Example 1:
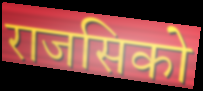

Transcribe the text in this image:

राजसिको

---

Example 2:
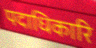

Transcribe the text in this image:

पदाधिकारि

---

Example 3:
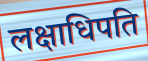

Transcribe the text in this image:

लक्षाधिपति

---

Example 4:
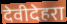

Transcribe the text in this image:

देवीदेहरा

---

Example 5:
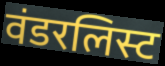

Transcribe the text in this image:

वंडरलिस्ट